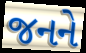
જનને